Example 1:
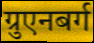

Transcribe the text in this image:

ग्रुएनबर्ग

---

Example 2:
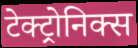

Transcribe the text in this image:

टेक्ट्रोनिक्स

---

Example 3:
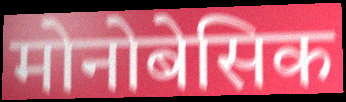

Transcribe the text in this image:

मोनोबेसिक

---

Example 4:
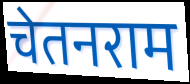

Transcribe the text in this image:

चेतनराम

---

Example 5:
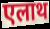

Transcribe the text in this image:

एलाथ